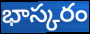
భాస్కరం